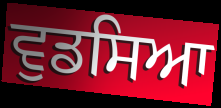
ਵੁਡਸਿਆ